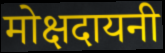
मोक्षदायनी